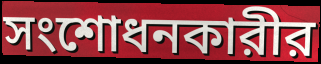
সংশোধনকারীর